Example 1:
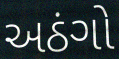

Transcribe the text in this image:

અઠંગો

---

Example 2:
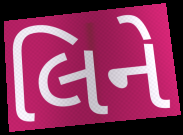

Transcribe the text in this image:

લિને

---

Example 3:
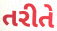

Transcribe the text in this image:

તરીતે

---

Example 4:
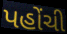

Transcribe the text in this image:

પહોંચી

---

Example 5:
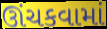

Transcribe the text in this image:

ઊંચકવામાં